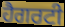
ਹੈਗਰਟੀ